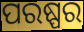
ପରଷ୍ପର